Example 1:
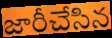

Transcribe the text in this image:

జారీచేసిన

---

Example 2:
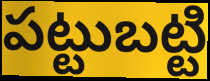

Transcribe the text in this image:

పట్టుబట్టి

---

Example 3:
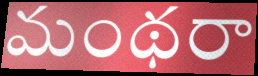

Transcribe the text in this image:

మంథరా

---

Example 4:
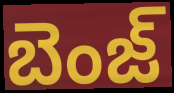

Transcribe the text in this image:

బెంజ్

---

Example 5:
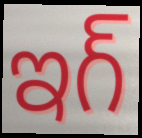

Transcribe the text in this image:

ఇగ్